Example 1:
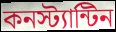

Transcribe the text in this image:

কনস্ট্যান্টিন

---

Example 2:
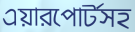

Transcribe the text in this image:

এয়ারপোর্টসহ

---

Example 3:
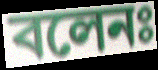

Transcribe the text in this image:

বলেনঃ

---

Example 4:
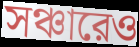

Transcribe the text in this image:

সঞ্চারেও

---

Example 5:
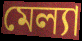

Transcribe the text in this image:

মেল্যা